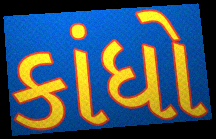
કાંધો